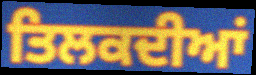
ਤਿਲਕਦੀਆਂ